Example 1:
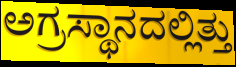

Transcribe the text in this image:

ಅಗ್ರಸ್ಥಾನದಲ್ಲಿತ್ತು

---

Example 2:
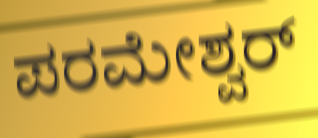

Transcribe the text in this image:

ಪರಮೇಶ್ವರ್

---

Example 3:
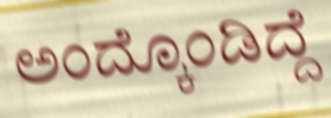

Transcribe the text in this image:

ಅಂದ್ಕೊಂಡಿದ್ದೆ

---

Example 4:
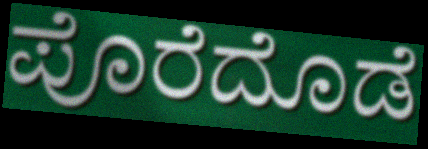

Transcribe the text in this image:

ಪೊರೆದೊಡೆ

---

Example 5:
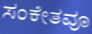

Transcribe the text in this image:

ಸಂಕೇತವೂ